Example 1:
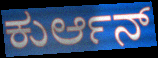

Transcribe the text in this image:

ಕುರ್ಆನ್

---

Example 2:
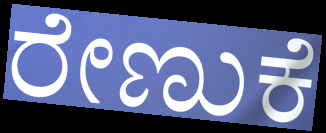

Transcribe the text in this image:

ರೇಣುಕೆ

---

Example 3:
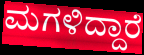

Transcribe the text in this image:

ಮಗಳಿದ್ದಾರೆ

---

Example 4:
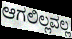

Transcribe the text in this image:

ಆಗಲಿಲ್ಲವಲ್ಲ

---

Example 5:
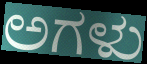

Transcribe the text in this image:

ಅಗಳು